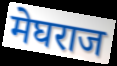
मेघराज